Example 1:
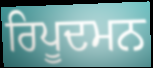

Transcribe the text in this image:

ਰਿਪੂਦਮਨ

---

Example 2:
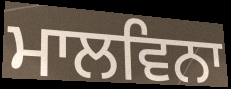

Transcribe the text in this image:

ਮਾਲਵਿਨਾ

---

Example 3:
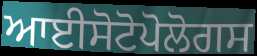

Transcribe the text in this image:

ਆਈਸੋਟੋਪੋਲੋਗਸ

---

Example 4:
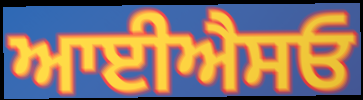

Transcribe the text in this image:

ਆਈਐਸਓ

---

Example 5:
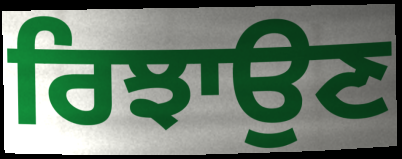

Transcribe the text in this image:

ਰਿਝਾਉਣ